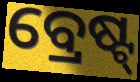
ବ୍ରେଷ୍ଟ୍